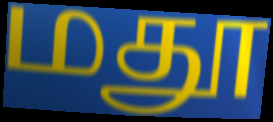
மதூ